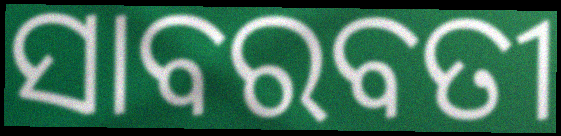
ସାବରବତୀ